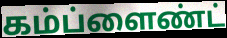
கம்ப்ளைண்ட்